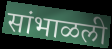
सांभाळली